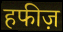
हफीज़